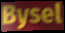
Bysel